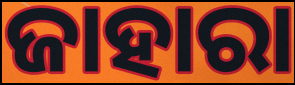
ଜାହାରା